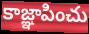
కాజ్ఞాపించు